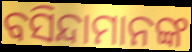
ବସିନ୍ଦାମାନଙ୍କ